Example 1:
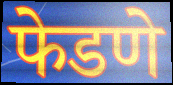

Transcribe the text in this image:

फेडणे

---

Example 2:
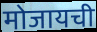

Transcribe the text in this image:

मोजायची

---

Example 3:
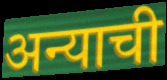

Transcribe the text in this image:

अन्याची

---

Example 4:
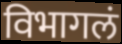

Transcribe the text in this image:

विभागलं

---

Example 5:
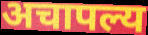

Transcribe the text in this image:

अचापल्य